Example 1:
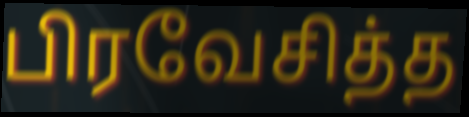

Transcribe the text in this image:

பிரவேசித்த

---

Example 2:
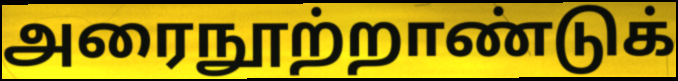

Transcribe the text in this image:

அரைநூற்றாண்டுக்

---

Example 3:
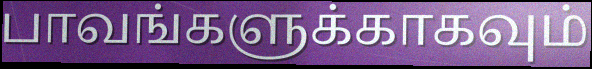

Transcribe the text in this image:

பாவங்களுக்காகவும்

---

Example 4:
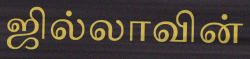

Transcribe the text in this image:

ஜில்லாவின்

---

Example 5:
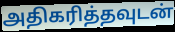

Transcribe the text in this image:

அதிகரித்தவுடன்